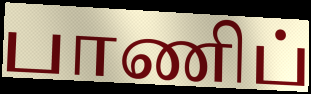
பாணிப்